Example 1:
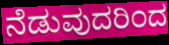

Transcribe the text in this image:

ನೆಡುವುದರಿಂದ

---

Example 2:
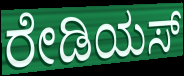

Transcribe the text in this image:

ರೇಡಿಯಸ್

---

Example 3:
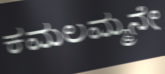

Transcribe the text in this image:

ಕಮಲಮ್ಮನೇ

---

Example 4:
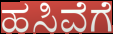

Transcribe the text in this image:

ಹಸಿವೆಗೆ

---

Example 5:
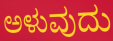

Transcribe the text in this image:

ಅಳುವುದು